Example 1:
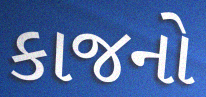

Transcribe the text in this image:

કાજનો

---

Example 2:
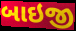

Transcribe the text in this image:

બાઇજી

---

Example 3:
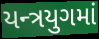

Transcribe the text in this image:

યન્ત્રયુગમાં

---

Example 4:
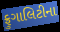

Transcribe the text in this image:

ફ્રુગાલિટીના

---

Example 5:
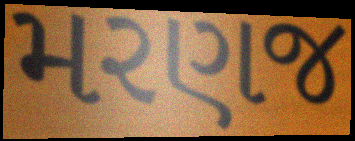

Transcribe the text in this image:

મરણજ